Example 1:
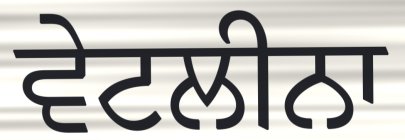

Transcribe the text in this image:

ਵੇਟਲੀਨਾ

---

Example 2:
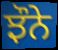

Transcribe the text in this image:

ਝੌਨੇ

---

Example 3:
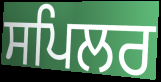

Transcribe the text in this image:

ਸਪਿਲਰ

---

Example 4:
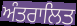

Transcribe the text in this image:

ਅੰਤਰਾਲਿਤ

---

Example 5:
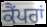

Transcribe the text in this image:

ਕੈਂਪਰਾਂ